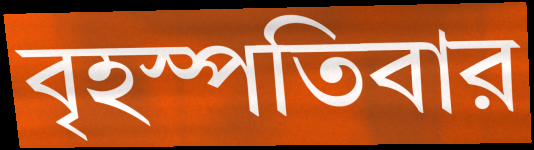
বৃহস্পতিবার